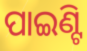
ପାଇଣ୍ଟି